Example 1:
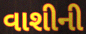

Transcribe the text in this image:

વાશીની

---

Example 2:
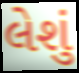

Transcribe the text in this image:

લેશું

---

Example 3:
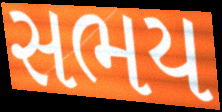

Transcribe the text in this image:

સભય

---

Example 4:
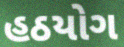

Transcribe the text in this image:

હઠયોગ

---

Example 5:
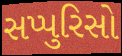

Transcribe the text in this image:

સપ્પુરિસો